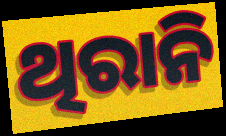
ଥିରାନି